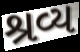
શ્રવ્ય